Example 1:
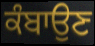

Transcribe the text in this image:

ਕੰਬਾਉਣ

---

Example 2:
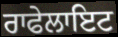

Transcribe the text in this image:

ਰਾਫੇਲਾਇਟ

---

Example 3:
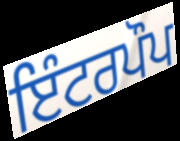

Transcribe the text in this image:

ਇੰਟਰਪੌਪ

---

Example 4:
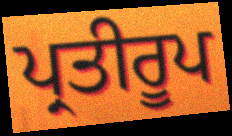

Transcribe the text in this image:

ਪ੍ਰਤੀਰੂਪ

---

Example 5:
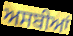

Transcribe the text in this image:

ਅਸਬੀਆਂ